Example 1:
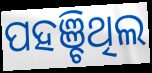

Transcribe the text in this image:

ପହଞ୍ଚିଥିଲ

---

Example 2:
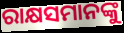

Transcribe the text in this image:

ରାକ୍ଷସମାନଙ୍କୁ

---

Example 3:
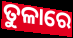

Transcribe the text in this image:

ତୁଳାରେ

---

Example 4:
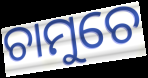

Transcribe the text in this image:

ଚାମୁଚେ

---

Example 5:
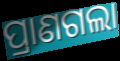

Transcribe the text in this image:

ପ୍ରାଣଗଲା